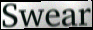
Swear